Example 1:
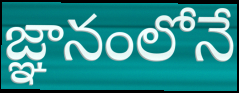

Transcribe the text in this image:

జ్ఞానంలోనే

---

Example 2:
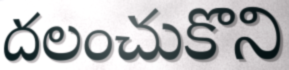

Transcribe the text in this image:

దలంచుకొని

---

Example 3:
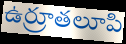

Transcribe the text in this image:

ఉర్రూతలూపి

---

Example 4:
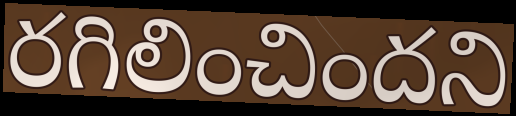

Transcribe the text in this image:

రగిలించిందని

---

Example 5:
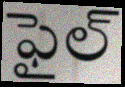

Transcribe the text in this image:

ఫైల్